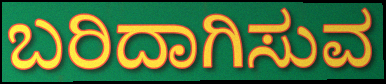
ಬರಿದಾಗಿಸುವ